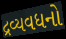
દ્રવ્યવધનો